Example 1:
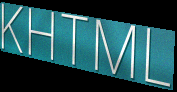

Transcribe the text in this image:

KHTML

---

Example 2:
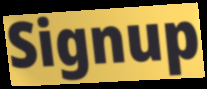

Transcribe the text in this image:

Signup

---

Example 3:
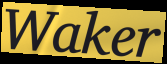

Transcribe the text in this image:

Waker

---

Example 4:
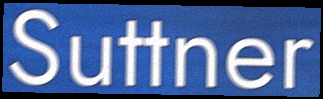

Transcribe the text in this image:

Suttner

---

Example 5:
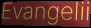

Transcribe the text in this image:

Evangelii